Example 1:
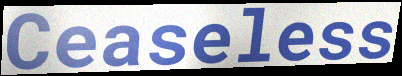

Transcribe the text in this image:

Ceaseless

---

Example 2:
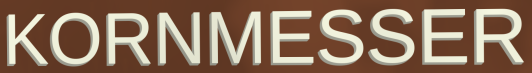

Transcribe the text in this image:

KORNMESSER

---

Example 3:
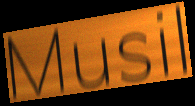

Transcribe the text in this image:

Musil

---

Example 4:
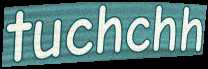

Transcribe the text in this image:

tuchchh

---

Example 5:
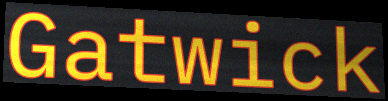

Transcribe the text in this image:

Gatwick